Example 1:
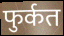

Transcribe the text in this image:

फुर्कत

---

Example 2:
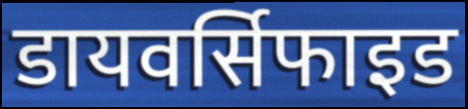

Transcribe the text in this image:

डायवर्सिफाइड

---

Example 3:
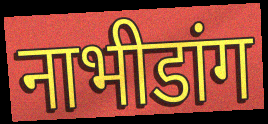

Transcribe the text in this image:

नाभीडांग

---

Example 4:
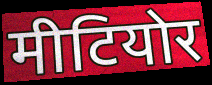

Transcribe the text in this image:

मीटियोर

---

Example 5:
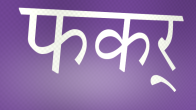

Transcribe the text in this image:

फकर्